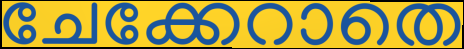
ചേക്കേറാതെ